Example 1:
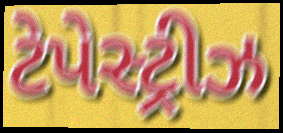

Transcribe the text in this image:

ટેપેસ્ટ્રીઝ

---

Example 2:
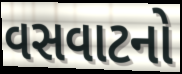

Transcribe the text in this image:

વસવાટનો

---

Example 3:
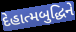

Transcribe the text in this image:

દેહાત્મબુદ્ધિને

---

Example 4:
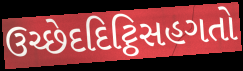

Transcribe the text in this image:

ઉચ્છેદદિટ્ઠિસહગતો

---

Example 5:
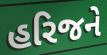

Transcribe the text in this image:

હરિજને